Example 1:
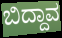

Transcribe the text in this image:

ಬಿದ್ದಾವ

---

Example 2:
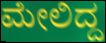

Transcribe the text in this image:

ಮೇಲಿದ್ದ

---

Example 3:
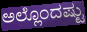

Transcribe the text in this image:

ಅಲ್ಲೊಂದಷ್ಟು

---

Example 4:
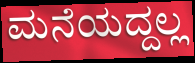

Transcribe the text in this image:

ಮನೆಯದ್ದಲ್ಲ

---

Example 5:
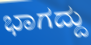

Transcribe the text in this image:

ಭಾಗದ್ದು